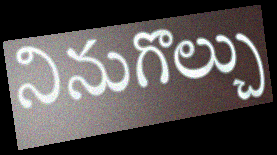
నినుగొల్చు